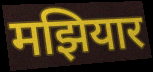
मझियार